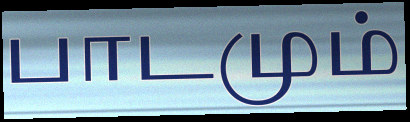
பாடமும்